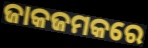
ଜାକଜମକରେ